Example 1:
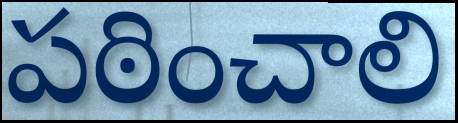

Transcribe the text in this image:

పఠించాలి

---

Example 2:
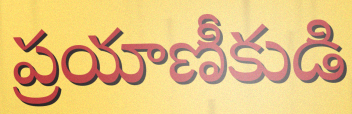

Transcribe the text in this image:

ప్రయాణీకుడి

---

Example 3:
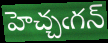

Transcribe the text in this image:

హెచ్చఁగన్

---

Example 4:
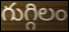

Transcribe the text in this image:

గుగ్గిలం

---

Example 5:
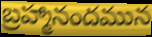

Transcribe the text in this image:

బ్రహ్మానందమున